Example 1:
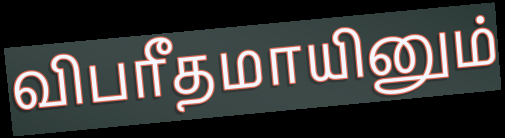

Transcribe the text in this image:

விபரீதமாயினும்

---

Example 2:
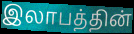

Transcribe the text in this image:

இலாபத்தின்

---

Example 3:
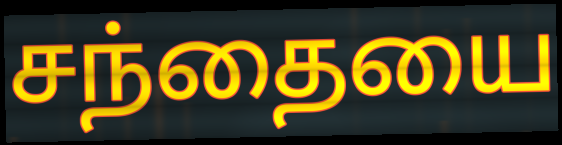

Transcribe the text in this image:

சந்தையை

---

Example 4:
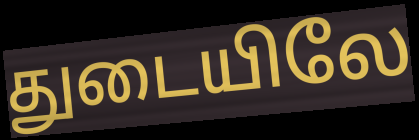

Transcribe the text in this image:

துடையிலே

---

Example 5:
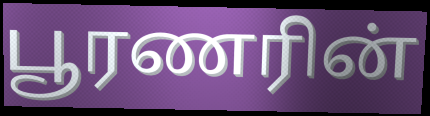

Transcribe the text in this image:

பூரணரின்